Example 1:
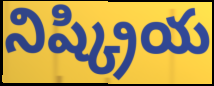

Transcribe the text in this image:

నిష్క్రియ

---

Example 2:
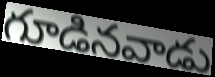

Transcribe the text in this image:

గూడినవాడు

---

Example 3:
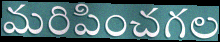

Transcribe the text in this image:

మరిపించగల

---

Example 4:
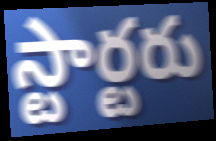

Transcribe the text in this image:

స్టార్టరు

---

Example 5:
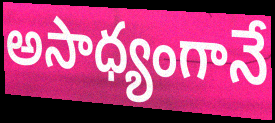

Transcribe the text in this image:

అసాధ్యంగానే